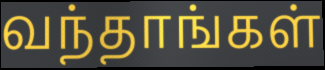
வந்தாங்கள்